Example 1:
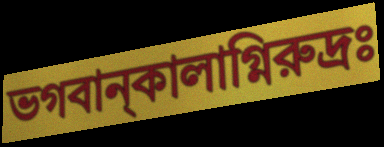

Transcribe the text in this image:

ভগবান্কালাগ্নিরুদ্রঃ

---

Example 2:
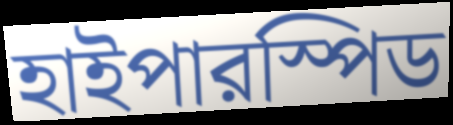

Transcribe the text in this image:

হাইপারস্পিড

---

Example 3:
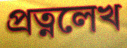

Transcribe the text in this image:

প্রত্নলেখ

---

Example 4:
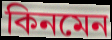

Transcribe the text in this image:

কিনমেন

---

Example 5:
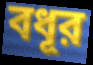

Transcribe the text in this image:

বধূর